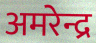
अमरेन्द्र